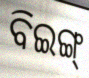
ବିଇଙ୍ଗ୍